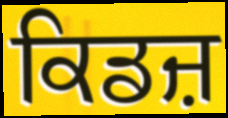
ਕਿਡਜ਼